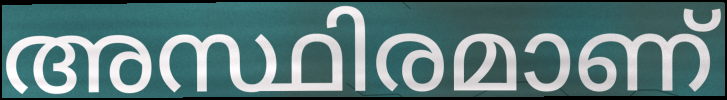
അസ്ഥിരമാണ്